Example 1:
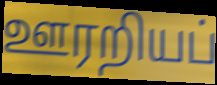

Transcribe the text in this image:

ஊரறியப்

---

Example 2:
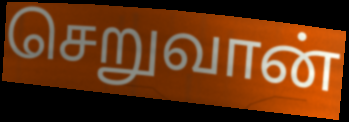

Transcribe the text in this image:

செறுவான்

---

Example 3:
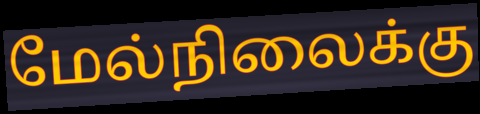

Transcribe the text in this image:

மேல்நிலைக்கு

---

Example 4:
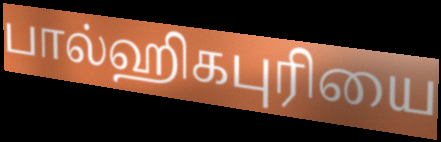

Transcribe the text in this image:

பால்ஹிகபுரியை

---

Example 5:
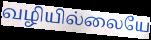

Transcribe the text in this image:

வழியில்லையே